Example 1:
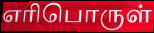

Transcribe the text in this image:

எரிபொருள்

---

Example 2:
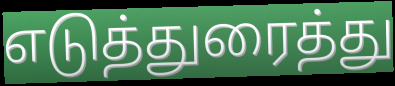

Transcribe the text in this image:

எடுத்துரைத்து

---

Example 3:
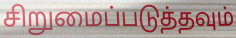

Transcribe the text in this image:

சிறுமைப்படுத்தவும்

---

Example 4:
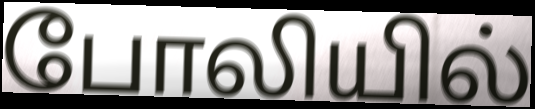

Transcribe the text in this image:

போலியில்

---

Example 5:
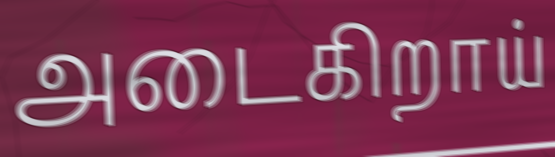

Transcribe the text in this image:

அடைகிறாய்